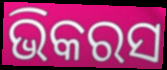
ଭିକରସ